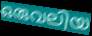
ഒരുവലിയ